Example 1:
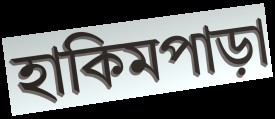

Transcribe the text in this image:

হাকিমপাড়া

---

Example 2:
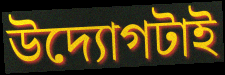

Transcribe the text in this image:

উদ্যোগটাই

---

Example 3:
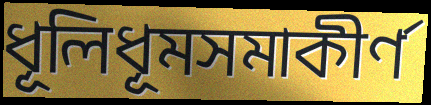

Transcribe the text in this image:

ধূলিধূমসমাকীর্ণ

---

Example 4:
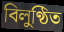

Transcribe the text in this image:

বিলুণ্ঠিত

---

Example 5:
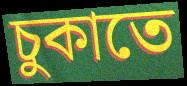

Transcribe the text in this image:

চুকাতে